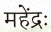
महेंद्रः